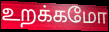
உறக்கமோ